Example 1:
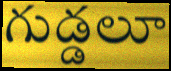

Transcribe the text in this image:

గుడ్డలూ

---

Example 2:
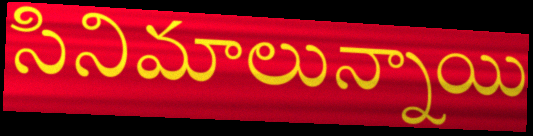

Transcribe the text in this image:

సినిమాలున్నాయి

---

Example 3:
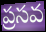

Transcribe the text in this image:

ప్రసవ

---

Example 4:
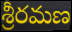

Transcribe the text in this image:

శ్రీరమణ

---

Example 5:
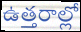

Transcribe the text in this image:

ఉత్తరాల్లో